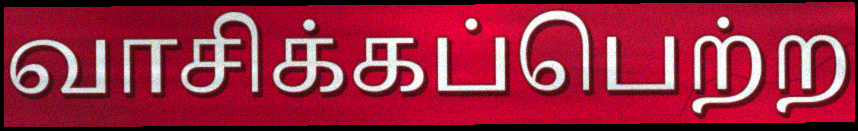
வாசிக்கப்பெற்ற